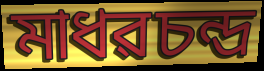
মাধৱচন্দ্ৰ